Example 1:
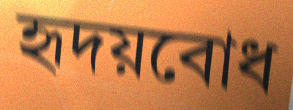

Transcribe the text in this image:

হৃদয়বোধ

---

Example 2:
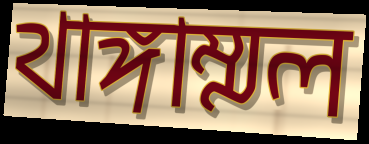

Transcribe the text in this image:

থাঙ্গাম্মল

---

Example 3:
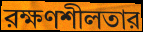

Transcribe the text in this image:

রক্ষণশীলতার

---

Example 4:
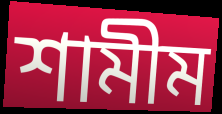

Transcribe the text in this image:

শামীম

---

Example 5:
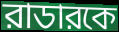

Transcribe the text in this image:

রাডারকে